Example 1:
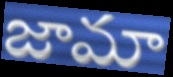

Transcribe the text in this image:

జామా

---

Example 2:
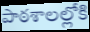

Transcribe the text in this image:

పాఠశాలల్లోకి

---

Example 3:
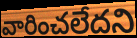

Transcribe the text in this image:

వారించలేదని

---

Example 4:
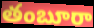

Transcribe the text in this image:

తంబూరా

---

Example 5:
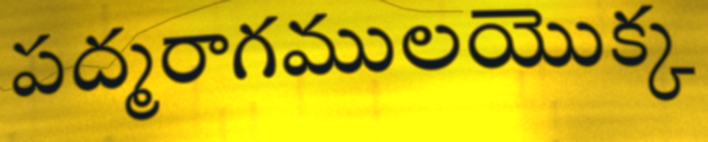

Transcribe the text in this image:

పద్మరాగములయొక్క